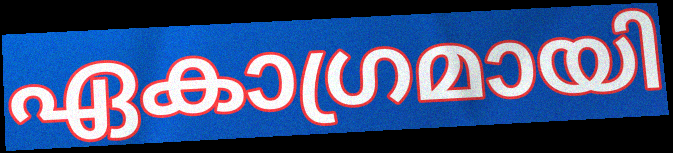
ഏകാഗ്രമായി